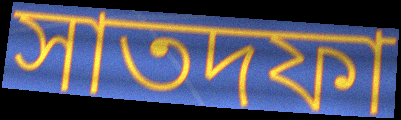
সাতদফা